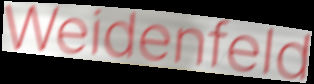
Weidenfeld